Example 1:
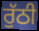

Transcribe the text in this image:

ਰੁੱਠੀ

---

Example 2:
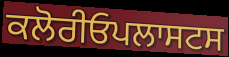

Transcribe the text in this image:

ਕਲੋਰੀਓਪਲਾਸਟਸ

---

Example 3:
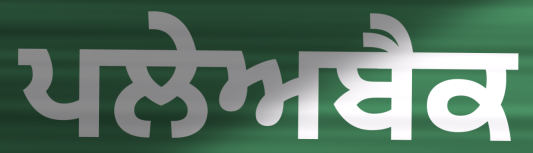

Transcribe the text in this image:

ਪਲੇਅਬੈਕ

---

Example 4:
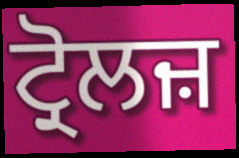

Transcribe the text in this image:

ਟ੍ਰੋਲਜ਼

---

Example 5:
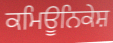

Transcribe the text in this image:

ਕਮਿਊਨਿਕੇਸ਼